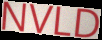
NVLD